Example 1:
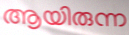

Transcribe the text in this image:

ആയിരുന്ന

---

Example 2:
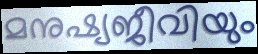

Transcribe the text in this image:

മനുഷ്യജീവിയും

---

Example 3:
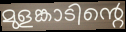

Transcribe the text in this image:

മുളങ്കാടിന്റെ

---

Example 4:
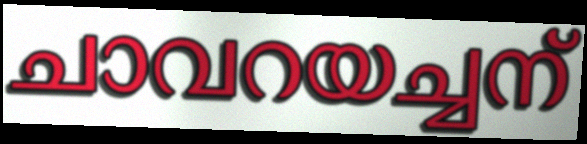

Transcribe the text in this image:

ചാവറയച്ചന്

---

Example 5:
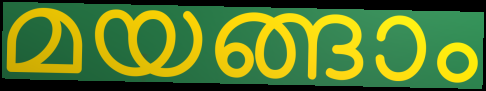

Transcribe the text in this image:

മയങ്ങാം